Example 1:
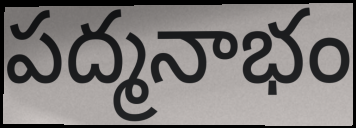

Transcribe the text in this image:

పద్మనాభం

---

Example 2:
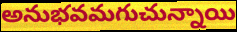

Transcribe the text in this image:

అనుభవమగుచున్నాయి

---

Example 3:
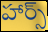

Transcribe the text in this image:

హార్స్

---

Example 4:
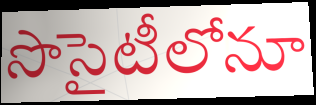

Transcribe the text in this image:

సొసైటీలోనూ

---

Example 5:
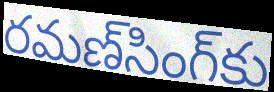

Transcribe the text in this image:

రమణ్‌సింగ్‌కు